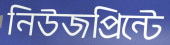
নিউজপ্রিন্টে